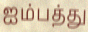
ஐம்பத்து